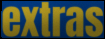
extras